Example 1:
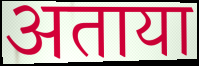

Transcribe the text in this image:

अताया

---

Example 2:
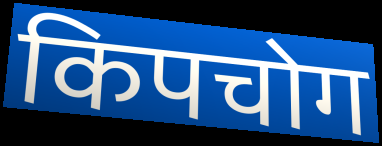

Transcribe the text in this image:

किपचोग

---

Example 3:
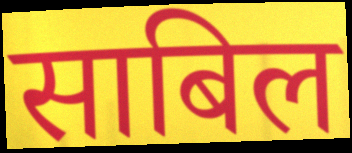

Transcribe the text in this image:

साबिल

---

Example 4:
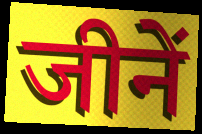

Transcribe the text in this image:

जीनें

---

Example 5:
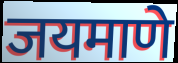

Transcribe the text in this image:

जयमाणे